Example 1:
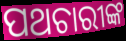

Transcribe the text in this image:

ପଥଚାରୀଙ୍କ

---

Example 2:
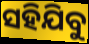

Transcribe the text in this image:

ସହିଯିବୁ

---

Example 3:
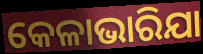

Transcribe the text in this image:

କେଳାଭାରିଯା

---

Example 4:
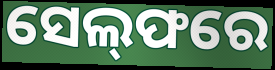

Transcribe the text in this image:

ସେଲ୍‌ଫରେ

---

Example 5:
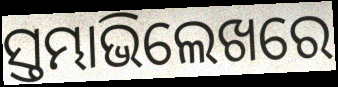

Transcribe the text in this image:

ସ୍ତମ୍ଭାଭିଲେଖରେ